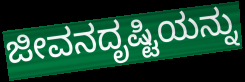
ಜೀವನದೃಷ್ಟಿಯನ್ನು